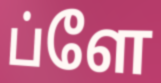
ப்ளே